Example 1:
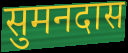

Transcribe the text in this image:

सुमनदास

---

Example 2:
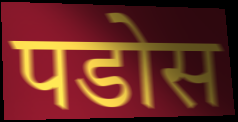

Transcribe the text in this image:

पडोस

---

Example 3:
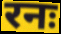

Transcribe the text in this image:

रनः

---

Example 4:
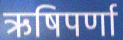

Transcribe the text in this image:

ऋषिपर्णा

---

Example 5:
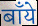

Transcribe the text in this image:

बाँये